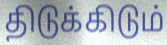
திடுக்கிடும்